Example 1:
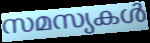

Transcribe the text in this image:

സമസ്യകൾ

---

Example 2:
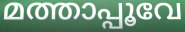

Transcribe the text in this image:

മത്താപ്പൂവേ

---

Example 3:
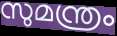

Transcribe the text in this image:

സുമന്ത്രം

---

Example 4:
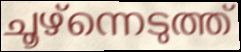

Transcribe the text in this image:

ചൂഴ്ന്നെടുത്ത്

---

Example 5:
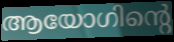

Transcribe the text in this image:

ആയോഗിന്റെ